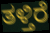
ತಳ್ತಿರೆ